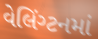
વેલિંગ્ટનમાં